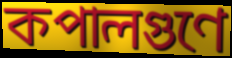
কপালগুণে